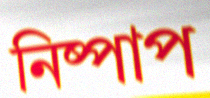
নিষ্পাপ